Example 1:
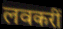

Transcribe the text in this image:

लवकरीं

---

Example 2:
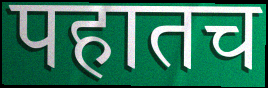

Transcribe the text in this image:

पहातच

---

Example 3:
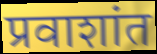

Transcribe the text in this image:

प्रवाशांत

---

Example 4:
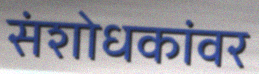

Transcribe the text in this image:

संशोधकांवर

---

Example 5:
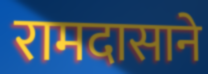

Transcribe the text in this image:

रामदासाने